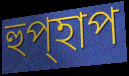
হুপ্হাপ